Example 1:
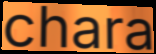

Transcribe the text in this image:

chara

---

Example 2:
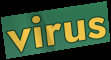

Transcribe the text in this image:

virus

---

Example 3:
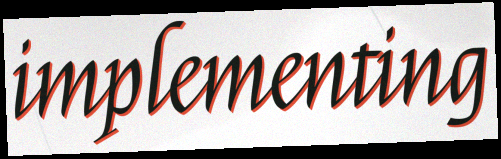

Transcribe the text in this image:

implementing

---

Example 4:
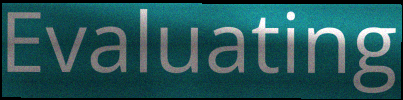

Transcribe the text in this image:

Evaluating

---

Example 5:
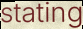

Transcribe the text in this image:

stating